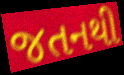
જતનથી